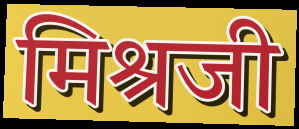
मिश्रजी